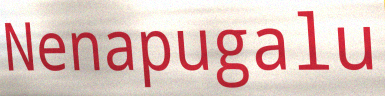
Nenapugalu